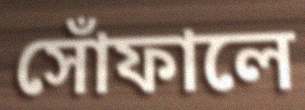
সোঁফালে